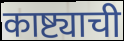
काष्ट्याची